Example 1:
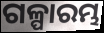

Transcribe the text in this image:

ଗଳ୍ପାରମ୍ଭ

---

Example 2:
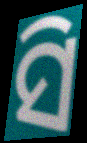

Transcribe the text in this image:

ସି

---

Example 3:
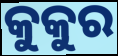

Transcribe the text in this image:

କୁକୁର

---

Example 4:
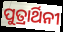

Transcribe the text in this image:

ପୁତ୍ରାର୍ଥିନୀ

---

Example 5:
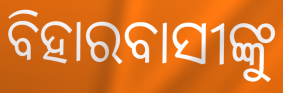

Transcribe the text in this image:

ବିହାରବାସୀଙ୍କୁ